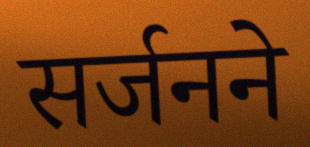
सर्जनने